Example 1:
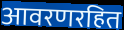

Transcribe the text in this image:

आवरणरहित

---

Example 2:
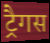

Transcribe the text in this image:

ट्रैगस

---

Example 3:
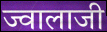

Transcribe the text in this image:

ज्वालाजी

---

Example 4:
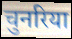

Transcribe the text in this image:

चुनरिया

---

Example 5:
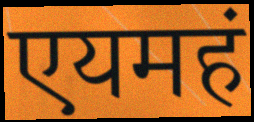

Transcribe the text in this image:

एयमहं